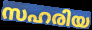
സഹരിയ